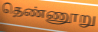
தெண்ணூறு